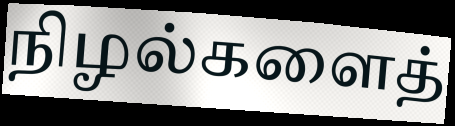
நிழல்களைத்